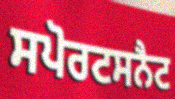
ਸਪੋਰਟਸਨੈਟ